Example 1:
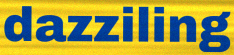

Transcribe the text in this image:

dazziling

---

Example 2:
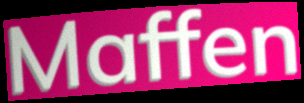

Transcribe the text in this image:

Maffen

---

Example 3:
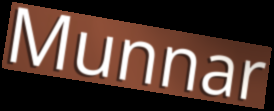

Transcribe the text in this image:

Munnar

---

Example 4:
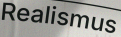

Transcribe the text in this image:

Realismus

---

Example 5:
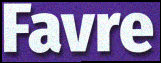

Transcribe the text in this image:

Favre